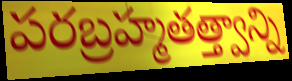
పరబ్రహ్మతత్త్వాన్ని